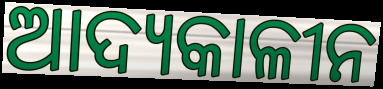
ଆଦ୍ୟକାଳୀନ